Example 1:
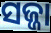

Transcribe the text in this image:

ସଜ୍ଜା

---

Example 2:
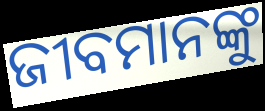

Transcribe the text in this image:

ଜୀବମାନଙ୍କୁ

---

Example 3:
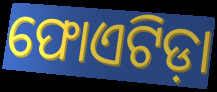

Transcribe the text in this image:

ଫୋଏଟିଡ଼ା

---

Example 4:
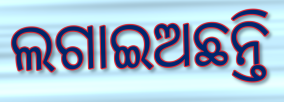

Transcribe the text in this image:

ଲଗାଇଅଛନ୍ତି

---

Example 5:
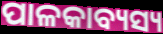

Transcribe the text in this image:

ପାଳକାବ୍ୟସ୍ୟ